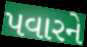
પવારને